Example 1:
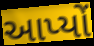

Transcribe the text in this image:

આપ્યોં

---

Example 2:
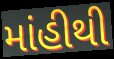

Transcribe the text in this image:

માંહીથી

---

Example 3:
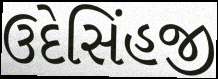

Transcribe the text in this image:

ઉદેસિંહજી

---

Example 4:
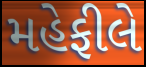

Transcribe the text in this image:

મહેફીલે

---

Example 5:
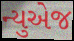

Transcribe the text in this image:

ન્યુએજ